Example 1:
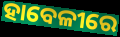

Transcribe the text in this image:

ହାବେଳୀରେ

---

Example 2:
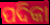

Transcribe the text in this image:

ପଦିକା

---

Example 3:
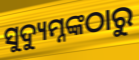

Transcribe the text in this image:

ସୁଦ୍ୟୁମ୍ନଙ୍କଠାରୁ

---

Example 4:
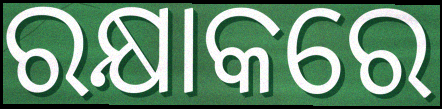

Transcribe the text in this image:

ରକ୍ଷାକରେ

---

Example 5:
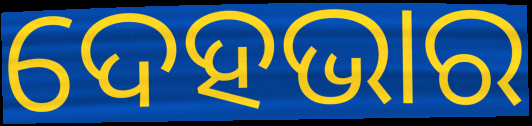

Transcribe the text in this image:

ଦେହଭାର